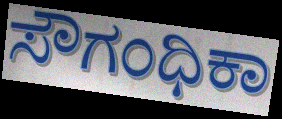
ಸೌಗಂಧಿಕಾ